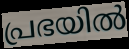
പ്രഭയിൽ